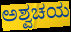
ಅಶ್ವಚಯ